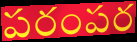
పరంపర